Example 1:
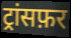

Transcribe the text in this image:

ट्रांसफ़र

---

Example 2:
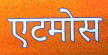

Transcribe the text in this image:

एटमोस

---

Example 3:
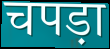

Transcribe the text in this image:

चपड़ा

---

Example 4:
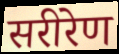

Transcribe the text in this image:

सरीरेण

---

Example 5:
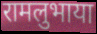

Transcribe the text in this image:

रामलुभाया